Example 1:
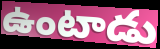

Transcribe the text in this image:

ఉంటాడు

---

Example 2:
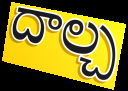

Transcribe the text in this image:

దాల్చ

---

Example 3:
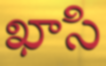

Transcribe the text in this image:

ఖాసి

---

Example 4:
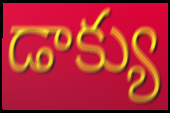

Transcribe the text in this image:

డాక్యు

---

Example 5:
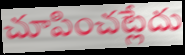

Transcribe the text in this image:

చూపించట్లేదు